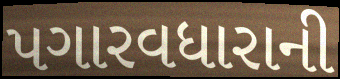
પગારવધારાની